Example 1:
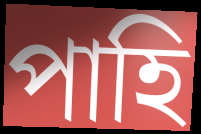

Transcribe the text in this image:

পাহি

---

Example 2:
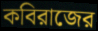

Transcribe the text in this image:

কবিরাজের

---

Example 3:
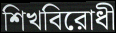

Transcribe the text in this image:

শিখবিরোধী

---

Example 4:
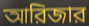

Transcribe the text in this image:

আরিজার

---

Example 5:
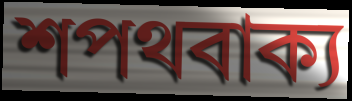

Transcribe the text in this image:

শপথবাক্য